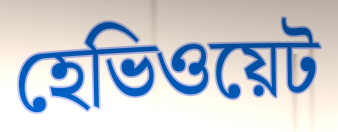
হেভিওয়েট